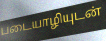
படையாழியுடன்